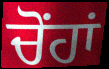
ਚੋਂਹਾਂ